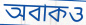
অবাকও